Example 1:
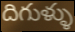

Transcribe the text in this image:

దిగుళ్ళు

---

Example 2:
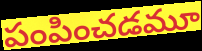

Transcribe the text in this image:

పంపించడమూ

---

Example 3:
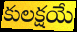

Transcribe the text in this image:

కులక్షయే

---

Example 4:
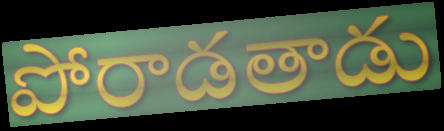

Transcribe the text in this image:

పోరాడతాడు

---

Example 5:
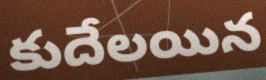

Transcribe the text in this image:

కుదేలయిన